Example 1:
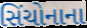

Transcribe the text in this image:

સિંચોનાના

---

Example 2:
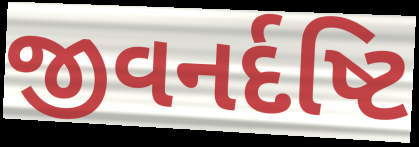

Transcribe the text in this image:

જીવનર્દષ્ટિ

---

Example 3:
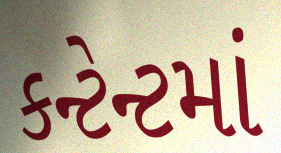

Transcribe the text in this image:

કન્ટેન્ટમાં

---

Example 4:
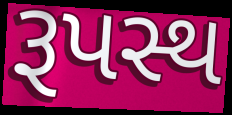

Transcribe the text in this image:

રૂપસ્થ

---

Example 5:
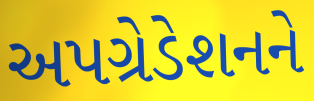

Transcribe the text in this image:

અપગ્રેડેશનને